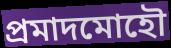
প্রমাদমোহৌ